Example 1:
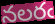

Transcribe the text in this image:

నలరఁ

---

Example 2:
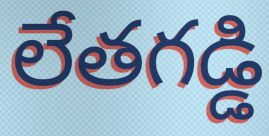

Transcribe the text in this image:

లేతగడ్డి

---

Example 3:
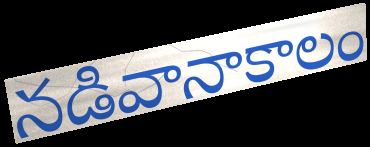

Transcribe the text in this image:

నడివానాకాలం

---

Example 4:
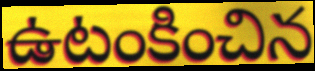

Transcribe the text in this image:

ఉటంకించిన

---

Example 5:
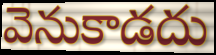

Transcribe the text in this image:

వెనుకాడదు